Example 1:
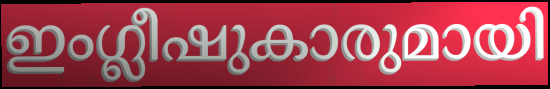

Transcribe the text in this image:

ഇംഗ്ലീഷുകാരുമായി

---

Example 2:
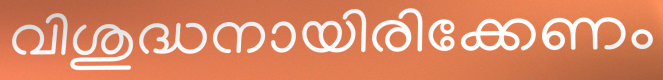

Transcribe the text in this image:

വിശുദ്ധനായിരിക്കേണം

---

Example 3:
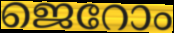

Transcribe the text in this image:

ജെറോം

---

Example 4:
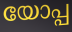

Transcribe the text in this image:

യോപ്പ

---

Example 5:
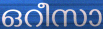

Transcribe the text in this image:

ഒറീസാ